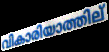
വികാരിയാത്തില്